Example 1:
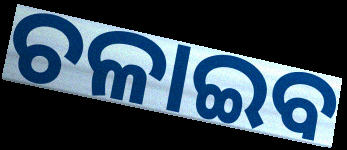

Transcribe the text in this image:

ଚଳାଇବ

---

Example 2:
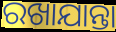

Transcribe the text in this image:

ରଖାଯାନ୍ତା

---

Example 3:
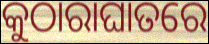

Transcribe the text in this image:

କୁଠାରାଘାତରେ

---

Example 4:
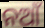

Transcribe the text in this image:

ନଆଁ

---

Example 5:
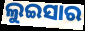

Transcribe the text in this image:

ଲୁଇସାର